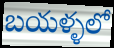
బయళ్ళలో